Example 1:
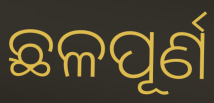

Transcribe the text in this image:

ଛଳପୂର୍ଣ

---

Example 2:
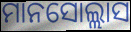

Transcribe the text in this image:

ମାନସୋଲ୍ଲାସ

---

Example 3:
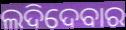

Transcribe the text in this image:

ଲଦିଦେବାର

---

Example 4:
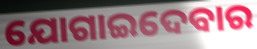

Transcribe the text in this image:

ଯୋଗାଇଦେବାର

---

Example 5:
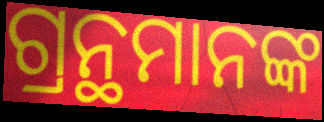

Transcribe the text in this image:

ଗ୍ରନ୍ଥମାନଙ୍କ